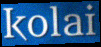
kolai